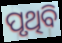
ପୃଥିବି